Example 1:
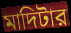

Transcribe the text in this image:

মাদিটার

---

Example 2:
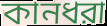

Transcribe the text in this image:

কানধরা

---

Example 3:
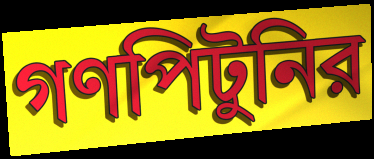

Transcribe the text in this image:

গণপিটুনির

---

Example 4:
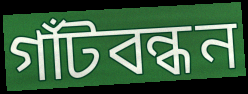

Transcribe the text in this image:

গাঁটবন্ধন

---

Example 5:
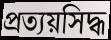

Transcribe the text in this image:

প্রত্যয়সিদ্ধ